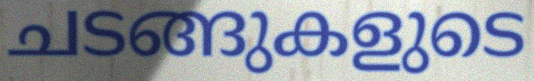
ചടങ്ങുകളുടെ